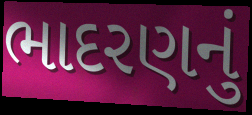
ભાદરણનું